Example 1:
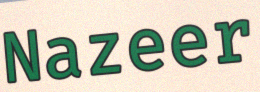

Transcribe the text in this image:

Nazeer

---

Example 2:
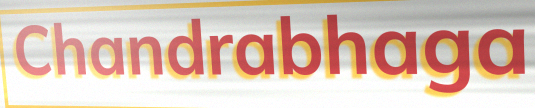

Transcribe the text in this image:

Chandrabhaga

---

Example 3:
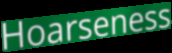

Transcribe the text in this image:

Hoarseness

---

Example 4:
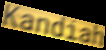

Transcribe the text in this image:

Kandiah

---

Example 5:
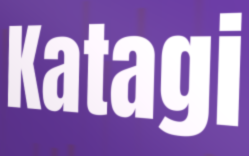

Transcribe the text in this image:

Katagi